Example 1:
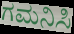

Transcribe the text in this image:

ಗಮನಿಸಿ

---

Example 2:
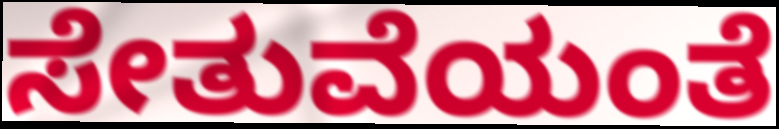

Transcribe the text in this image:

ಸೇತುವೆಯಂತೆ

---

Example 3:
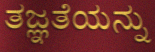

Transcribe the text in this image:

ತಜ್ಞತೆಯನ್ನು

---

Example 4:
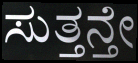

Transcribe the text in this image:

ಸುತ್ತನ್ತೇ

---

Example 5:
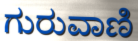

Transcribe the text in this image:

ಗುರುವಾಣಿ